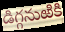
డిగ్గనుఱికి